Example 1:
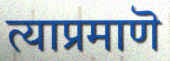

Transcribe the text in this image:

त्याप्रमाणॆ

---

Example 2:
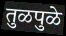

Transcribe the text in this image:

तुळपुळे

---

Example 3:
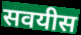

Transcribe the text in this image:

सवयीस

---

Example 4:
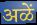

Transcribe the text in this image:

अळें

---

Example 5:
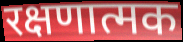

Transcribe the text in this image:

रक्षणात्मक